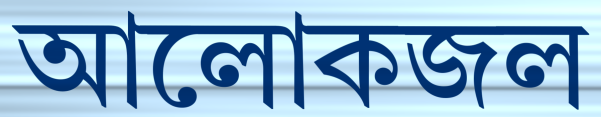
আলোকজল